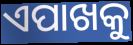
ଏପାଖକୁ